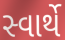
સ્વાર્થે